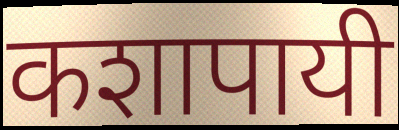
कशापायी